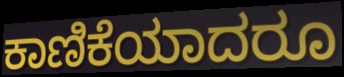
ಕಾಣಿಕೆಯಾದರೂ